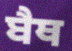
ਬੈਥ